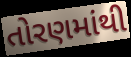
તોરણમાંથી